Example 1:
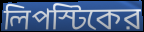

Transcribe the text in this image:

লিপস্টিকের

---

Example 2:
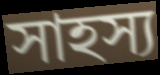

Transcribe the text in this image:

সাহস্য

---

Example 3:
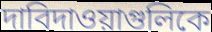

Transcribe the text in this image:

দাবিদাওয়াগুলিকে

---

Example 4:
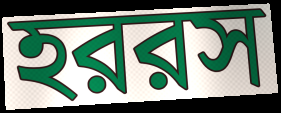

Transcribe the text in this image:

হররস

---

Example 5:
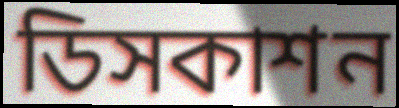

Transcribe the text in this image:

ডিসকাশন